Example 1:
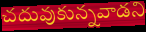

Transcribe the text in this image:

చదువుకున్నవాడని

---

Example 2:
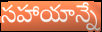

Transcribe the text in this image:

సహాయాన్నే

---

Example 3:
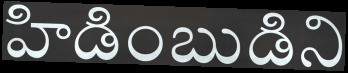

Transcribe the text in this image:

హిడింబుడిని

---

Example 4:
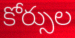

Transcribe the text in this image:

కోర్సుల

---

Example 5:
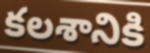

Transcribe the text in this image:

కలశానికి